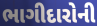
ભાગીદારોની